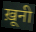
ख़ूनी